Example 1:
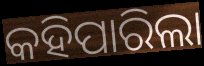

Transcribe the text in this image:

କହିପାରିଲା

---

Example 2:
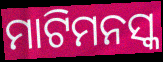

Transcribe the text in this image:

ମାଟିମନସ୍କ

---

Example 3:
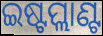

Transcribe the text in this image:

ଇଷ୍ଟପ୍ଲାଣ୍ଟ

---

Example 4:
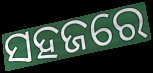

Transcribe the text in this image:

ସହଜରେ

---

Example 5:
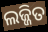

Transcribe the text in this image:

ଲଜ୍ଜିତ